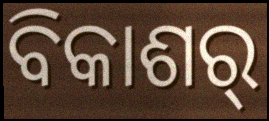
ବିକାଶର୍